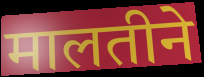
मालतीने